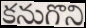
కనుగొని